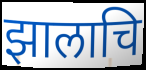
झालाचि